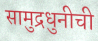
सामुद्रधुनीची